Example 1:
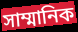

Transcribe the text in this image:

সাম্মানিক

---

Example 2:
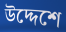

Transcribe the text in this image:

উদ্দেশে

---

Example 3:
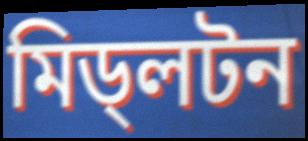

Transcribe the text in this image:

মিড্লটন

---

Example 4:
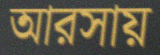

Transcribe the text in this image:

আরসায়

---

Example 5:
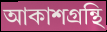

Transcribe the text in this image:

আকাশগ্রন্থি